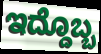
ಇದ್ದೊಬ್ಬ